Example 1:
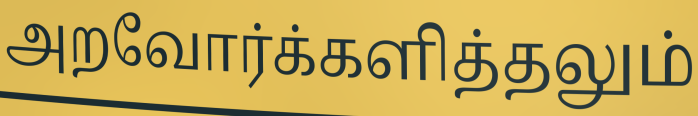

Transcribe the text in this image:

அறவோர்க்களித்தலும்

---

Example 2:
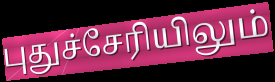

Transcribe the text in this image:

புதுச்சேரியிலும்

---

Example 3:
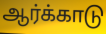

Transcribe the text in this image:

ஆர்க்காடு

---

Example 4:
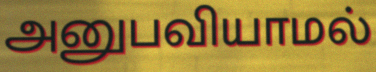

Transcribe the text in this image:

அனுபவியாமல்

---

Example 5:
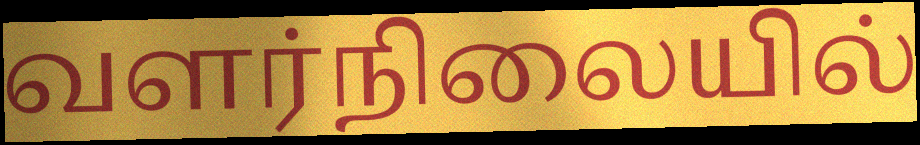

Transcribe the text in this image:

வளர்நிலையில்